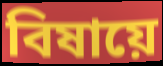
বিষায়ে